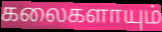
கலைகளாயும்